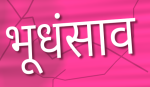
भूधंसाव